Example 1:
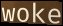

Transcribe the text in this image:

woke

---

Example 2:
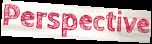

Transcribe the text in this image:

Perspective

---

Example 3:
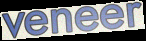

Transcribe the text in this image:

veneer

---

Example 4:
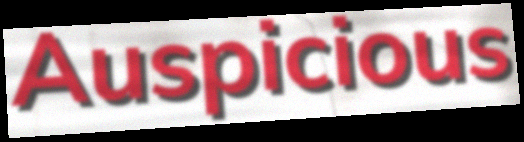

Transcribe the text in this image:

Auspicious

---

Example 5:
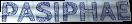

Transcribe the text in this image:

PASIPHAE